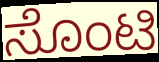
ಸೊಂಟಿ